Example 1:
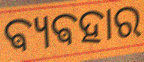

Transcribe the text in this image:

ଵ୍ଯଵହାର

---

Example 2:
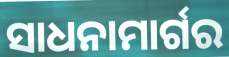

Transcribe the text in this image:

ସାଧନାମାର୍ଗର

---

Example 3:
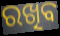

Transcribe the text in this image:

ରଖିବ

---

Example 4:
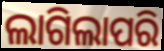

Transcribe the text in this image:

ଲାଗିଲାପରି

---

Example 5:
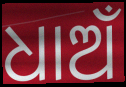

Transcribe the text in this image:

ଧାଅଁ